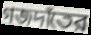
গজদাঁতের